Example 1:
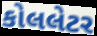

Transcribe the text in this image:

કોલલેટર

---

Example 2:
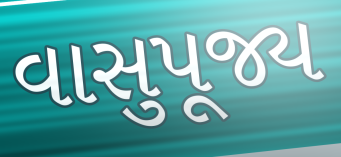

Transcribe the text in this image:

વાસુપૂજ્ય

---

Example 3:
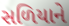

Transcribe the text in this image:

સળિયાને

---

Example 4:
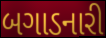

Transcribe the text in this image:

બગાડનારી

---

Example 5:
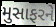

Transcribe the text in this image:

મુસાફરને